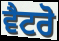
ਵੈਟਰੋ